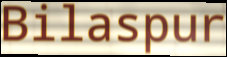
Bilaspur